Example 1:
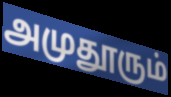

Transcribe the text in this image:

அமுதூரும்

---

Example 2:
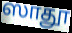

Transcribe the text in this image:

ஸாதூ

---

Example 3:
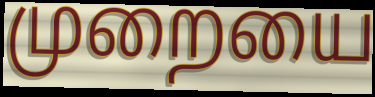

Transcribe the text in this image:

முறையை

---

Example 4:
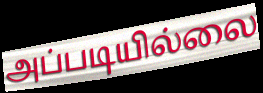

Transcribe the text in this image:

அப்படியில்லை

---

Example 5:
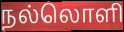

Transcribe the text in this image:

நல்லொளி